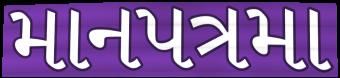
માનપત્રમા